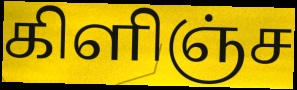
கிளிஞ்ச